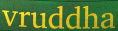
vruddha